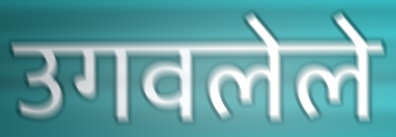
उगवलेले